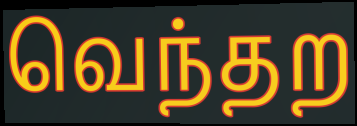
வெந்தற